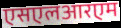
एसएलआरएम